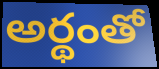
అర్థంతో